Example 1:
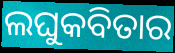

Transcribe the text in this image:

ଲଘୁକବିତାର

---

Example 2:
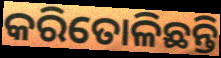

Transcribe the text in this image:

କରିତୋଳିଛନ୍ତି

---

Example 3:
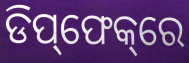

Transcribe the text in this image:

ଡିପ୍‌ଫେକ୍‌ରେ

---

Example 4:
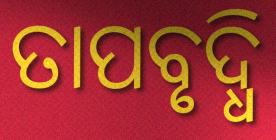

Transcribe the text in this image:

ତାପବୃଦ୍ଧି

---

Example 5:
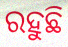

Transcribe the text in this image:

ରହୁଛି